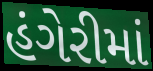
હંગેરીમાં